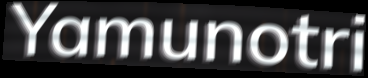
Yamunotri